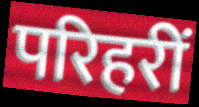
परिहरीं